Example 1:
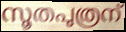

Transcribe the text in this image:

സൂതപുത്രന്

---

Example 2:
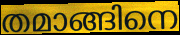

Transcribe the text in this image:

തമാങ്ങിനെ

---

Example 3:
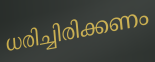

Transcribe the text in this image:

ധരിച്ചിരിക്കണം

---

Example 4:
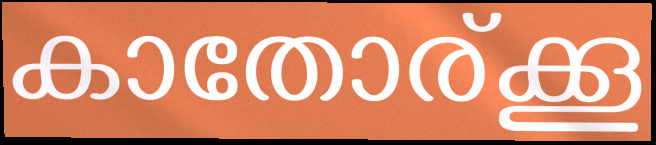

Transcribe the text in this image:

കാതോര്ക്കൂ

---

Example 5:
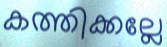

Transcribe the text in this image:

കത്തിക്കല്ലേ